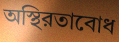
অস্থিরতাবোধ